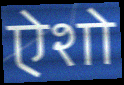
ऐशो